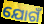
ଯୋଗଁ